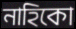
নাহিকো